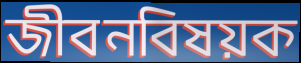
জীবনবিষয়ক